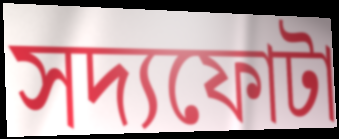
সদ্যফোটা